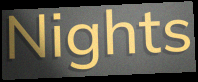
Nights